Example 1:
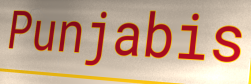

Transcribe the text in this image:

Punjabis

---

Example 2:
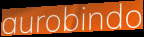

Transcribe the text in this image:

aurobindo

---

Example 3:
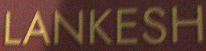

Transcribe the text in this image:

LANKESH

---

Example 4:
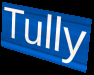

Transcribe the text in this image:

Tully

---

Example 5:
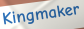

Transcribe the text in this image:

Kingmaker